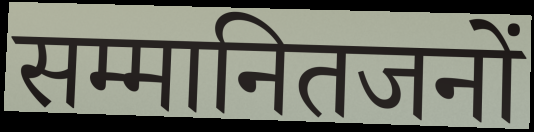
सम्मानितजनों